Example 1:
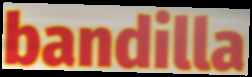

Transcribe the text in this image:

bandilla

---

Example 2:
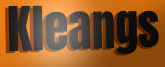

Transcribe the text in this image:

Kleangs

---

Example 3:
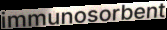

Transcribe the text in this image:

immunosorbent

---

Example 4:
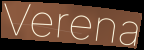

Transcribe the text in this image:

Verena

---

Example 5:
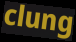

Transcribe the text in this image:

clung